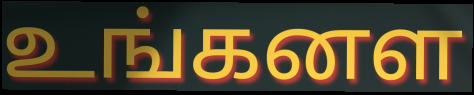
உங்கனள